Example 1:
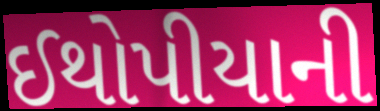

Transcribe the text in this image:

ઈથોપીયાની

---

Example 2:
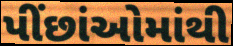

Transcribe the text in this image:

પીંછાંઓમાંથી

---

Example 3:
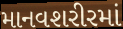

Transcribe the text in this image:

માનવશરીરમાં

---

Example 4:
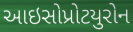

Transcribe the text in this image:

આઇસોપ્રોટયુરોન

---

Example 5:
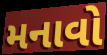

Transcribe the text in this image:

મનાવો